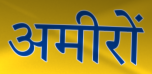
अमीरों